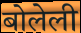
बोलेली